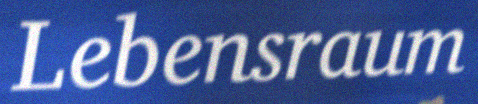
Lebensraum